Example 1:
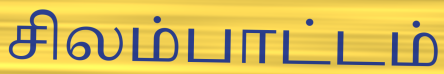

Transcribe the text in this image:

சிலம்பாட்டம்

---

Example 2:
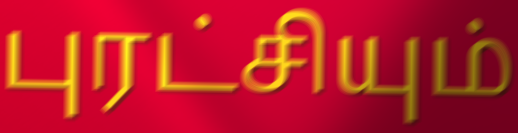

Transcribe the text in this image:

புரட்சியும்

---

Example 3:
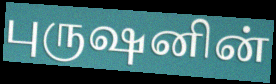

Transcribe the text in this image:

புருஷனின்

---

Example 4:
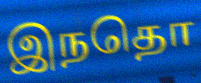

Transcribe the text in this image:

இநதொ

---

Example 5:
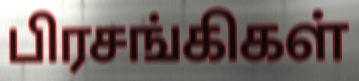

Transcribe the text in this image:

பிரசங்கிகள்